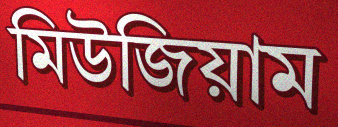
মিউজিয়াম